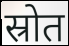
स्रोत